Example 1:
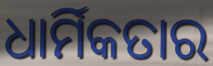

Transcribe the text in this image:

ଧାର୍ମିକତାର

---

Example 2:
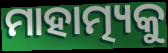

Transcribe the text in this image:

ମାହାତ୍ମ୍ୟକୁ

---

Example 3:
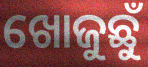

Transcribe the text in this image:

ଖୋଜୁଛୁଁ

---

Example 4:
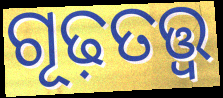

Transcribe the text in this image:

ଗୂଢ଼ତତ୍ତ୍ୱ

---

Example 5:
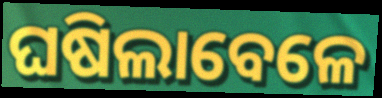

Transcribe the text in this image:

ଘଷିଲାବେଳେ